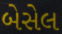
બેસેલ